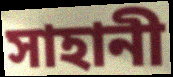
সাহানী